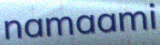
namaami